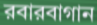
রবারবাগান